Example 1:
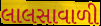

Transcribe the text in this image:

લાલસાવાળી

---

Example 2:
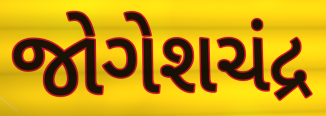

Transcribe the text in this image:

જોગેશચંદ્ર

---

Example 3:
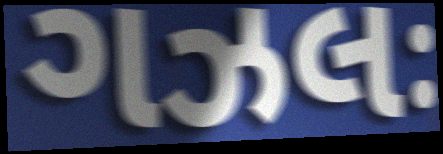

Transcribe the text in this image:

ગઝલઃ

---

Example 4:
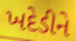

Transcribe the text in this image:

ખદેડીને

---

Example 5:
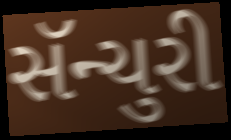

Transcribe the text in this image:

સૅન્ચુરી